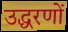
उद्धरणों